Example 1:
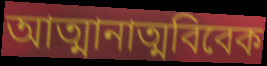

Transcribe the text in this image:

আত্মানাত্মবিবেক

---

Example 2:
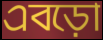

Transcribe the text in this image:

এবড়ো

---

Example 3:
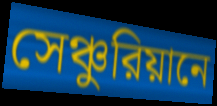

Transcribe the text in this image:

সেঞ্চুরিয়ানে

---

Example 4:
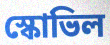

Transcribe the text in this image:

স্কোভিল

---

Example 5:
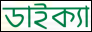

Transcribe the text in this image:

ডাইক্যা